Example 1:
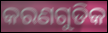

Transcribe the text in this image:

କରଣଗୁଡିକ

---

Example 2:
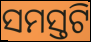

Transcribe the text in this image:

ସମସ୍ତଟି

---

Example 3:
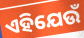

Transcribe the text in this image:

ଏହିଯେଉଁ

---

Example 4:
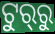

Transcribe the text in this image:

ଟୁର୍‍ରୁ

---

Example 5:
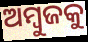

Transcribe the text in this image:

ଅମ୍ବୁଜକୁ